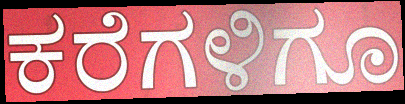
ಕರೆಗಳಿಗೂ